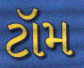
ટૉમ